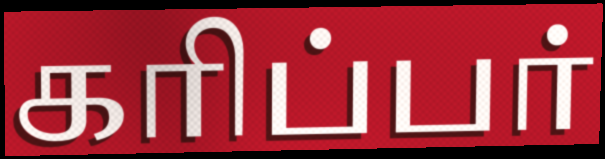
கரிப்பர்